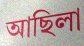
আছিলা